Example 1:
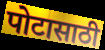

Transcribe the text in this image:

पोटासाठी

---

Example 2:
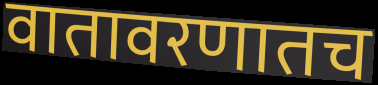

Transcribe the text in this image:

वातावरणातच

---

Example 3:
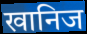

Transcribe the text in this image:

खानिज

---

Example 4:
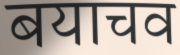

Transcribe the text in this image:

बयाचव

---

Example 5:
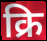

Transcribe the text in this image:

क्रि